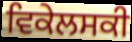
ਵਿਕੇਲਸਕੀ